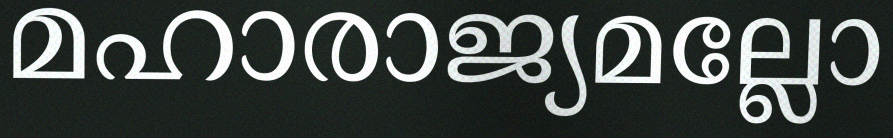
മഹാരാജ്യമല്ലോ